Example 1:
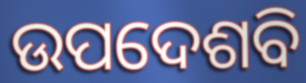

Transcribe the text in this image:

ଉପଦେଶବି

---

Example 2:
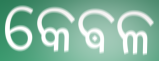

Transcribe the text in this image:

କେଵଳ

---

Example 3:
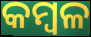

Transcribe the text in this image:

କମ୍ବଳ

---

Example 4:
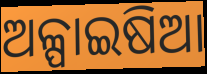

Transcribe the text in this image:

ଅଳ୍ପାଇଷିଆ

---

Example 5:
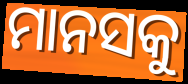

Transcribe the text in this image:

ମାନସକୁ